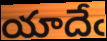
యాదేఁ